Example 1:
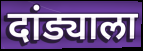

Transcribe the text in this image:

दांड्याला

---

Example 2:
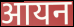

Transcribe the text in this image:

आयन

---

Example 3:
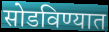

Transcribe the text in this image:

सोडविण्यात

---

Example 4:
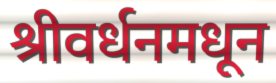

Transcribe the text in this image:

श्रीवर्धनमधून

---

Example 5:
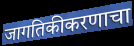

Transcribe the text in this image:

जागतिकीकरणाचा